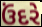
ઉંદરે